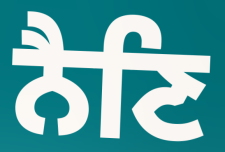
ਨੈਣਿ